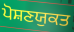
ਪੋਸ਼ਣਯੁਕਤ